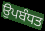
ਉਪਬੰਧਤ